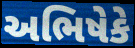
અભિષેકે